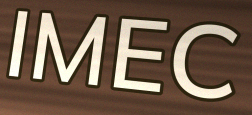
IMEC